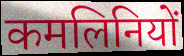
कमलिनियों